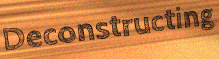
Deconstructing